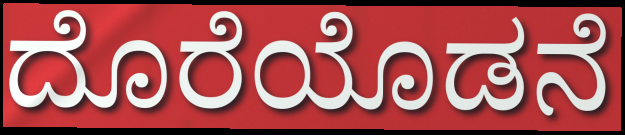
ದೊರೆಯೊಡನೆ